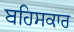
ਬਹਿਸਕਾਰ